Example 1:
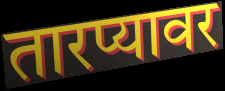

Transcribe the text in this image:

तारप्यावर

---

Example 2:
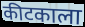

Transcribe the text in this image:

कीटकाला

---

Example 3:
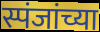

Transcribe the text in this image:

स्पंजांच्या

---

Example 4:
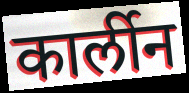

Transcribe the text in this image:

कार्लीन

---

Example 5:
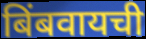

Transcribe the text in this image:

बिंबवायची